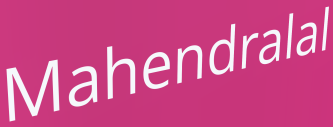
Mahendralal